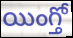
యింగ్తో